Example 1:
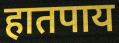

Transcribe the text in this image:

हातपाय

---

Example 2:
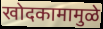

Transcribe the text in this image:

खोदकामामुळे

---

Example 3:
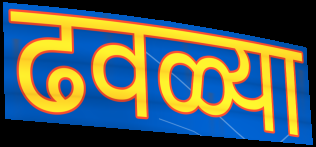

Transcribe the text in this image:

ढवळ्या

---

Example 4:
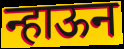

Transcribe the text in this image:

न्हाऊन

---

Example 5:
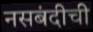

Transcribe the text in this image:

नसबंदीची